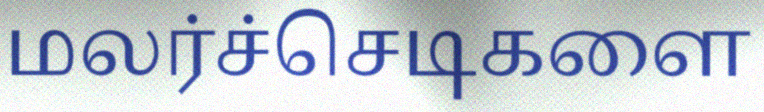
மலர்ச்செடிகளை